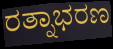
ರತ್ನಾಭರಣ